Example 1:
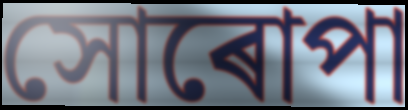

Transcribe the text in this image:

সোৰোপা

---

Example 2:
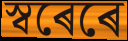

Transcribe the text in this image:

স্বৰেৰে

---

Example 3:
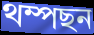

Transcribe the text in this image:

থম্পছন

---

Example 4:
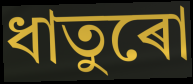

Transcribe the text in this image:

ধাতুৰো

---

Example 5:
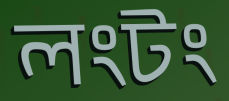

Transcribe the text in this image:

লংটং